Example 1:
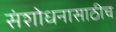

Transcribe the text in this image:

संशोधनासाठीच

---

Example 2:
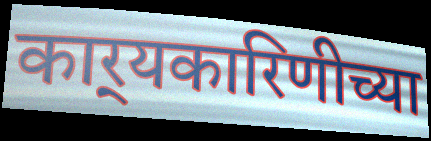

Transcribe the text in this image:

कार्यकारिणीच्या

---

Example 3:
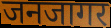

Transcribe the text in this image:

जनजागर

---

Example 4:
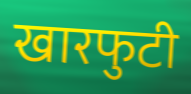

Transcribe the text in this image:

खारफुटी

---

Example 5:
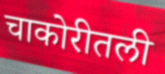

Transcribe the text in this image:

चाकोरीतली